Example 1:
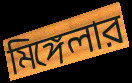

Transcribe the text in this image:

মিঙ্গেলার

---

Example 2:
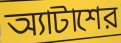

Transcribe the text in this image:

অ্যাটাশের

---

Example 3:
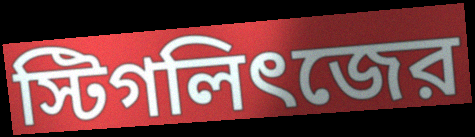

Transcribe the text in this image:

স্টিগলিৎজের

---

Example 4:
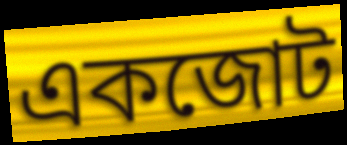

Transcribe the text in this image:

একজোট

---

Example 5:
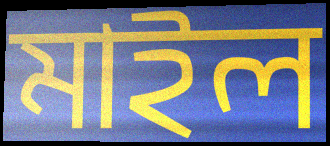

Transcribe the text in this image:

মাইল